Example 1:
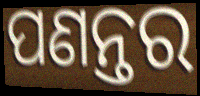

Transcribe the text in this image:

ପଣନ୍ତର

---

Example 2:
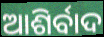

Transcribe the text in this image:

ଆଶିର୍ବାଦ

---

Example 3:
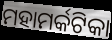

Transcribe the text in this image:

ମହାମର୍କଟିକା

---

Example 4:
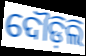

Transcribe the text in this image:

ଦୌଡ଼ିଲି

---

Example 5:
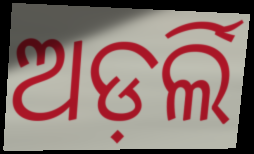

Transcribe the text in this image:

ଅଡ଼ର୍ଲି